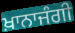
ਖ਼ਾਨਾਜੰਗੀ